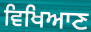
ਵਿਖਿਆਣ